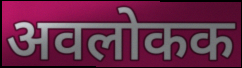
अवलोकक